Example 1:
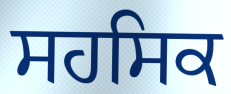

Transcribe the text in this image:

ਸਹਸਿਕ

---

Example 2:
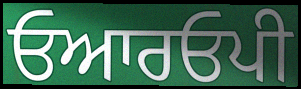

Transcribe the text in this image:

ਓਆਰਓਪੀ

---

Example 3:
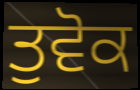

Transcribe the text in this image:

ਤੁਵੋਕ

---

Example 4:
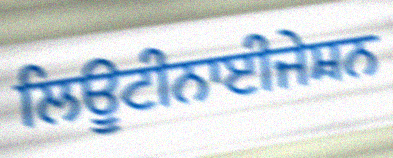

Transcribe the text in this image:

ਲਿਊਟੀਨਾਈਜੇਸ਼ਨ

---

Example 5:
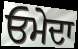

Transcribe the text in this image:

ਓਮੇਦਾ